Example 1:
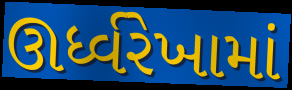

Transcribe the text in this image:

ઊર્ધ્વરેખામાં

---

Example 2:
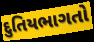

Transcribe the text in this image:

દુતિયભાગતો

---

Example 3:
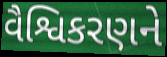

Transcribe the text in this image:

વૈશ્વિકરણને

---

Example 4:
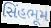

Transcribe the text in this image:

સિંહભૂમ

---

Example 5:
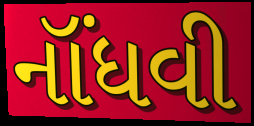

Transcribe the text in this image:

નૉંધવી